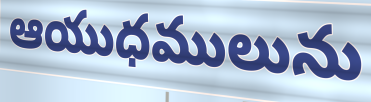
ఆయుధములును